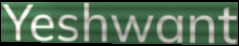
Yeshwant